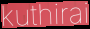
kuthirai